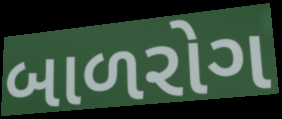
બાળરોગ